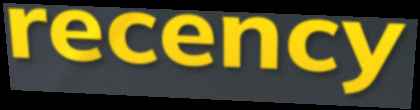
recency